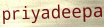
priyadeepa